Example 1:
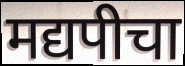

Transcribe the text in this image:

मद्यपीचा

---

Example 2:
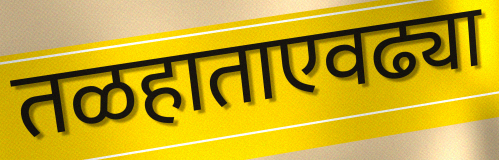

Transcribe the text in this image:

तळहाताएवढ्या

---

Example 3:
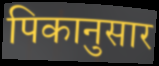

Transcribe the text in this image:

पिकानुसार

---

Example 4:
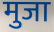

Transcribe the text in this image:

मुजा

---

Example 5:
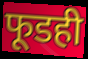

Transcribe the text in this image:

फूडही